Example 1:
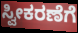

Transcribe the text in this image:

ಸ್ವೀಕರಣೆಗೆ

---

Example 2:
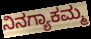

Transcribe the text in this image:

ನಿನಗ್ಯಾಕಮ್ಮ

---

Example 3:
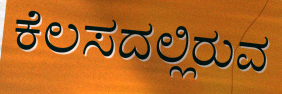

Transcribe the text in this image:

ಕೆಲಸದಲ್ಲಿರುವ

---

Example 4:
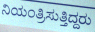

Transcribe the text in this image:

ನಿಯಂತ್ರಿಸುತ್ತಿದ್ದರು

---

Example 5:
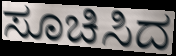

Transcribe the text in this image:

ಸೂಚಿಸಿದ